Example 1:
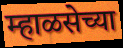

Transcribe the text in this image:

म्हाळसेच्या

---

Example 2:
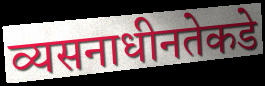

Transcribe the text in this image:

व्यसनाधीनतेकडे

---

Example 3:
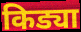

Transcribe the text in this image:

किड्या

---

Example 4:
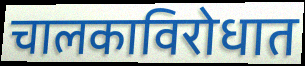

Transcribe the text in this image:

चालकाविरोधात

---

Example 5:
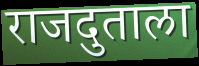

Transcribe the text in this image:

राजदुताला